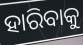
ହାରିବାକୁ